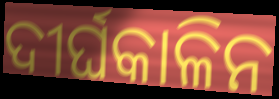
ଦୀର୍ଘକାଳିନ